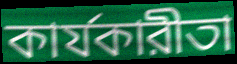
কার্যকারীতা